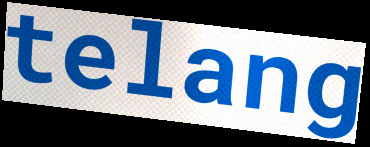
telang